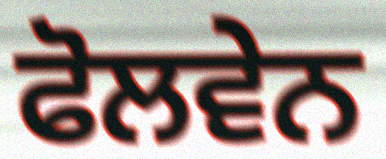
ਫੋਲਵੇਨ